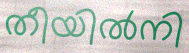
തീയിൽനി